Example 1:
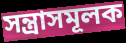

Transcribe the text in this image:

সন্ত্রাসমূলক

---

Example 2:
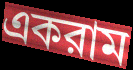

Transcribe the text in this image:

একরাম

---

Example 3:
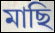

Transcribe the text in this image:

মাছি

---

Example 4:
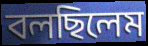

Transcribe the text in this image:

বলছিলেম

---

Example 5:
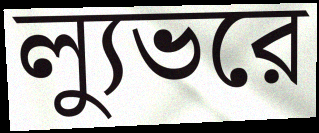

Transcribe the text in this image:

ল্যুভরে